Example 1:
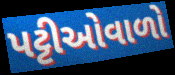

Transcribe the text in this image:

પટ્ટીઓવાળો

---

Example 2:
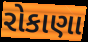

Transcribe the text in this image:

રોકાણા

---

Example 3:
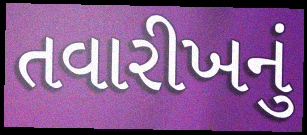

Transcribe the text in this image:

તવારીખનું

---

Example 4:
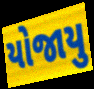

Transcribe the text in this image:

યોજાયુ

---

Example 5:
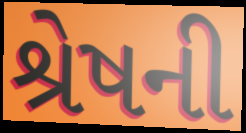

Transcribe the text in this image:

શ્રેષની